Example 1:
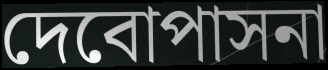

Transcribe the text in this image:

দেবোপাসনা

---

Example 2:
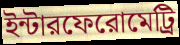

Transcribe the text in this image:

ইন্টারফেরোমেট্রি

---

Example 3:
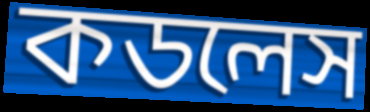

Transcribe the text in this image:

কডলেস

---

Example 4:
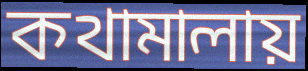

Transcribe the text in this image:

কথামালায়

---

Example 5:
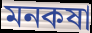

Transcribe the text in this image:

মনকষা